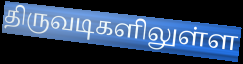
திருவடிகளிலுள்ள